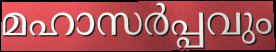
മഹാസർപ്പവും